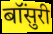
बॉंसुरी